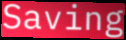
Saving